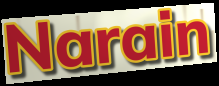
Narain